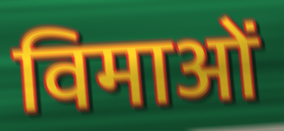
विमाओं